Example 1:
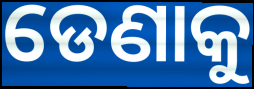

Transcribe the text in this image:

ଡେଣାକୁ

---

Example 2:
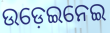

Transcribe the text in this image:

ଉଡ଼େଇନେଇ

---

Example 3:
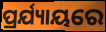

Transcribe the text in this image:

ପ୍ରର୍ଯ୍ୟାୟରେ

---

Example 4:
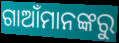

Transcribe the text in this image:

ଗାଆଁମାନଙ୍କରୁ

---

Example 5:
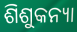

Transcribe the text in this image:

ଶିଶୁକନ୍ଯା